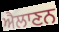
ਐਲਾਣਨ